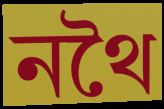
নথৈ